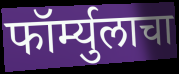
फॉर्म्युलाचा